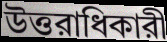
উত্তরাধিকারী